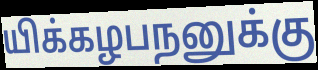
யிக்கழபநனுக்கு